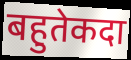
बहुतेकदा